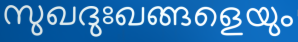
സുഖദുഃഖങ്ങളെയും